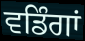
ਵਡਿੰਗਾਂ